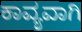
ಕಾವ್ಯವಾಗಿ